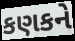
કણકને